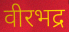
वीरभद्र